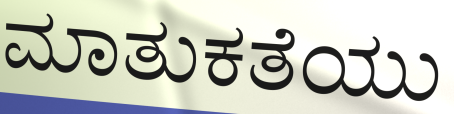
ಮಾತುಕತೆಯು